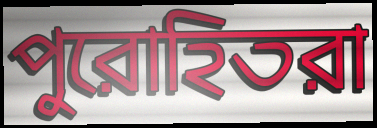
পুরোহিতরা